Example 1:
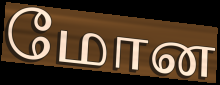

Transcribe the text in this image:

மோன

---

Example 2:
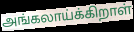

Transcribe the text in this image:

அங்கலாய்க்கிறாள்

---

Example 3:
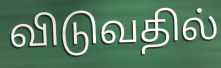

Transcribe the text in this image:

விடுவதில்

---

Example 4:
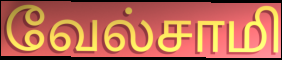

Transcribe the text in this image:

வேல்சாமி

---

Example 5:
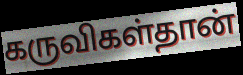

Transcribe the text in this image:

கருவிகள்தான்